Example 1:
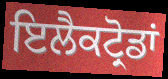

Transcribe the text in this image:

ਇਲੈਕਟ੍ਰੋਡਾਂ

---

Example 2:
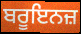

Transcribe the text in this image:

ਬਰੂਇਨਜ਼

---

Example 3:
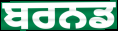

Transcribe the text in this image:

ਬਰਨਡ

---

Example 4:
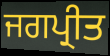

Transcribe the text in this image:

ਜਗਪ੍ਰੀਤ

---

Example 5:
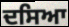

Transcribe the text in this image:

ਦਸਿਆ